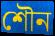
শৌন